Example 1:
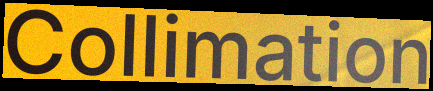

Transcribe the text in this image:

Collimation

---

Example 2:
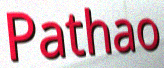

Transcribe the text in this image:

Pathao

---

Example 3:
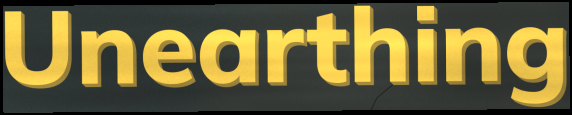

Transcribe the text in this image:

Unearthing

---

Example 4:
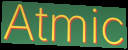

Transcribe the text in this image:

Atmic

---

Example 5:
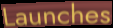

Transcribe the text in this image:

Launches